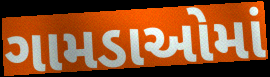
ગામડાઓમાં